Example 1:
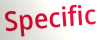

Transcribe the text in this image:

Specific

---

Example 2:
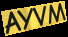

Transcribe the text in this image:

AYVM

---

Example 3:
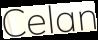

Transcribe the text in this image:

Celan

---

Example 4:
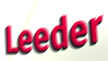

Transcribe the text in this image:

Leeder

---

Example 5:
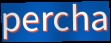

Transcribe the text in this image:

percha